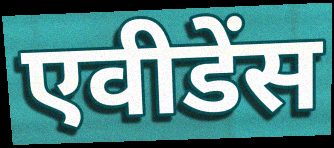
एवीडेंस